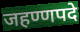
जहण्णपदे